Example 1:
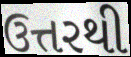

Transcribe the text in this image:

ઉત્તરથી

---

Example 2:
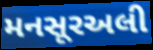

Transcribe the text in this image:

મનસૂરઅલી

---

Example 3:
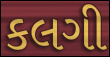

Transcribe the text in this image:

કલગી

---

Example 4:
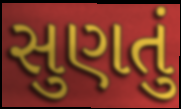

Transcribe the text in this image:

સુણતું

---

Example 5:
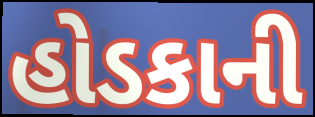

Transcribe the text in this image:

હોડકાની